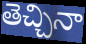
తెచ్చినా